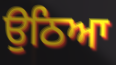
ਉਠਿਆ